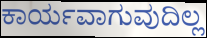
ಕಾರ್ಯವಾಗುವುದಿಲ್ಲ